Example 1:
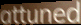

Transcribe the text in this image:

attuned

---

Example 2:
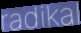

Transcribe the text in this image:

radikal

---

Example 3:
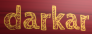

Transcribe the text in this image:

darkar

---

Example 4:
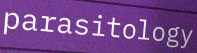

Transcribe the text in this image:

parasitology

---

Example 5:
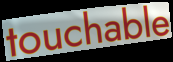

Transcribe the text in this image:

touchable